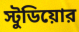
স্টুডিয়োর